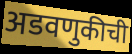
अडवणुकीची